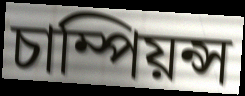
চাম্পিয়ন্স